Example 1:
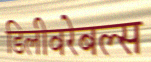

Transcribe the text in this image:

डिलीवरेबल्स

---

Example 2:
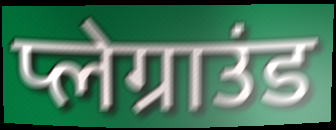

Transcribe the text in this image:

प्लेग्राउंड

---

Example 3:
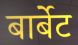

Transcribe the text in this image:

बार्बेट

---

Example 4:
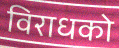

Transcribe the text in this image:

विराधको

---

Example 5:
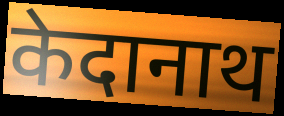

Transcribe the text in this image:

केदानाथ